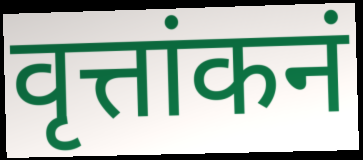
वृत्तांकनं